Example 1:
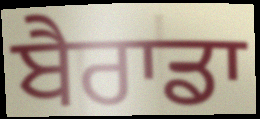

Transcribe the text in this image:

ਬੈਰਾਡਾ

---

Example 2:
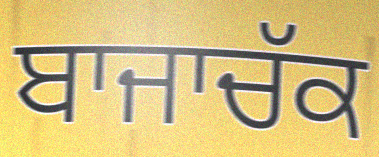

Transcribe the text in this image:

ਬਾਜਾਚੱਕ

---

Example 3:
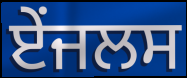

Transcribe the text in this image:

ਏਂਜਲਸ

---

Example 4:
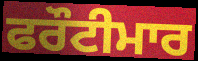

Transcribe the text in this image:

ਫਰੌਟੀਮਾਰ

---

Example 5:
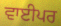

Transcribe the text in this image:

ਵਾਈਪਰ